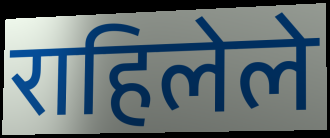
राहिलेले